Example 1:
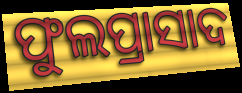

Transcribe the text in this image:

ଫୁଲପ୍ରାସାଦ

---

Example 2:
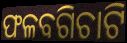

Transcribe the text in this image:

ଫଳବଗିଚାଟି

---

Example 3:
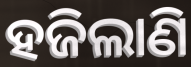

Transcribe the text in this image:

ହଜିଲାଣି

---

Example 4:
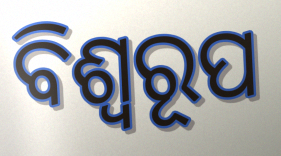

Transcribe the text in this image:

ବିଶ୍ଵରୂପ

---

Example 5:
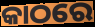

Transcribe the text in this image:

କାଠରେ